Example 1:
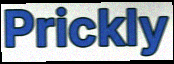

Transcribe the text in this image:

Prickly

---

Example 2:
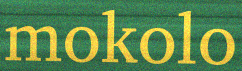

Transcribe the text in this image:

mokolo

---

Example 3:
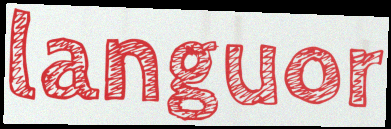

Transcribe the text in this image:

languor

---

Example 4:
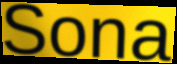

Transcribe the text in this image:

Sona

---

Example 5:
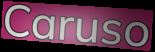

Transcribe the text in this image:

Caruso